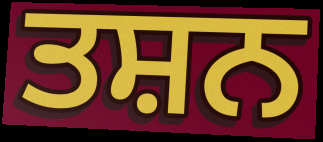
ਤਸ਼ਨ